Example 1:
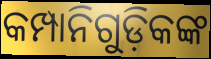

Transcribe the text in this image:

କମ୍ପାନିଗୁଡ଼ିକଙ୍କ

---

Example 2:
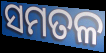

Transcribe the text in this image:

ସମତଳ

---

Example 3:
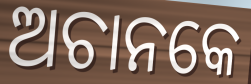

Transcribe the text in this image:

ଅଚାନକେ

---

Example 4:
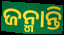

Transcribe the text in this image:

ଜନ୍ମାନ୍ତି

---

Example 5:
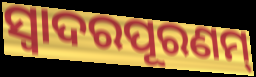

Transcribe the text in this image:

ସ୍ଵାଦରପୂରଣମ୍